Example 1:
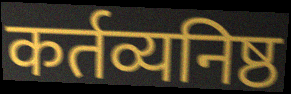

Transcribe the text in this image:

कर्तव्यनिष्ठ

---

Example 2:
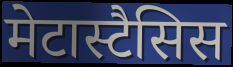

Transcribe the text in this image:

मेटास्टैसिस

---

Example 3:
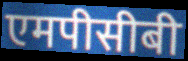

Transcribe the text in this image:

एमपीसीबी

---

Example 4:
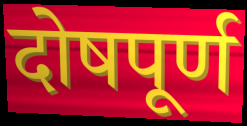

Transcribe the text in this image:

दोषपूर्ण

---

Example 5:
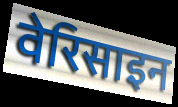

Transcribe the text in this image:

वेरिसाइन